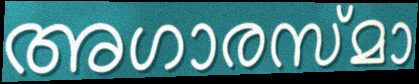
അഗാരസ്മാ